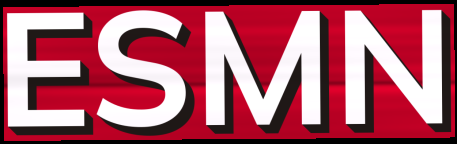
ESMN